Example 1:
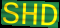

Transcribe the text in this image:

SHD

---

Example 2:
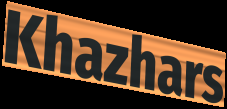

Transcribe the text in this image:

Khazhars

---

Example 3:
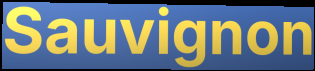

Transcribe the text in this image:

Sauvignon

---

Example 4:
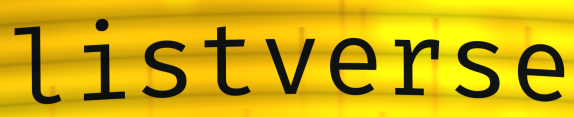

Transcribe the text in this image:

listverse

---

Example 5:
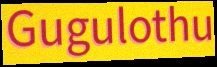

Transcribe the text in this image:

Gugulothu